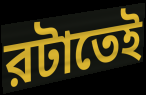
রটাতেই